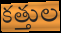
కత్తుల